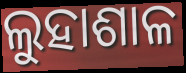
ଲୁହାଶାଳ